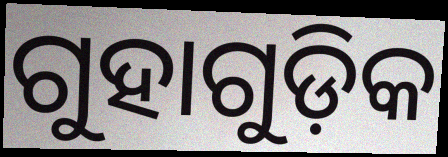
ଗୁହାଗୁଡ଼ିକ